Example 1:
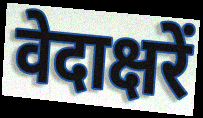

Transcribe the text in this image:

वेदाक्षरें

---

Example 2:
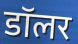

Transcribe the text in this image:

डॉलर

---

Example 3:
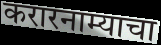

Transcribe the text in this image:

करारनाम्याचा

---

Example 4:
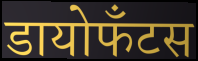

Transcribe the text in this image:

डायोफँटस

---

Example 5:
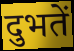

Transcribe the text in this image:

दुभतें